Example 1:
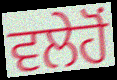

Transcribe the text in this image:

ਵਲੇਹੋਂ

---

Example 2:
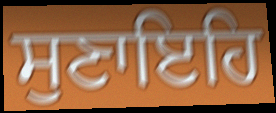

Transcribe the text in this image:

ਸੁਣਾਇਹਿ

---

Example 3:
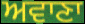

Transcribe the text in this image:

ਅਵਾਣਾ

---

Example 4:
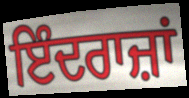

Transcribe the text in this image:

ਇੰਦਰਾਜ਼ਾਂ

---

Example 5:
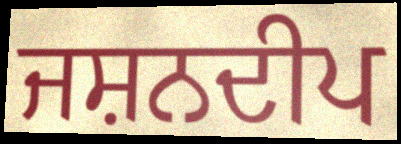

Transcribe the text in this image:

ਜਸ਼ਨਦੀਪ